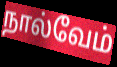
நால்வேம்